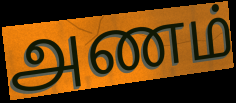
அணம்